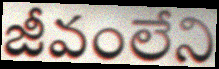
జీవంలేని